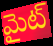
మైట్